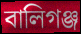
বালিগঞ্জ